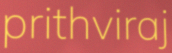
prithviraj